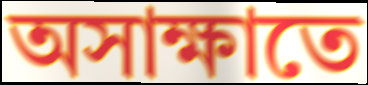
অসাক্ষাতে